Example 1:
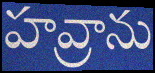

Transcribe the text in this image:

హవ్రాను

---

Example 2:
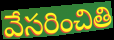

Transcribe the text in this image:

వేసరించితి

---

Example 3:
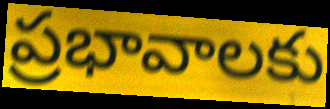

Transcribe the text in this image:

ప్రభావాలకు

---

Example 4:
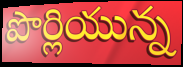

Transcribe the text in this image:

పొర్లియున్న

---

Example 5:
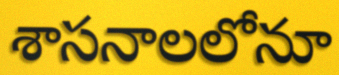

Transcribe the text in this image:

శాసనాలలోనూ